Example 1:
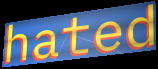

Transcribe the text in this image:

hated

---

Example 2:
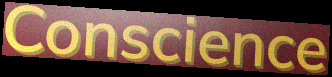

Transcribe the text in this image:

Conscience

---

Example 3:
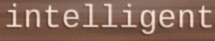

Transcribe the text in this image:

intelligent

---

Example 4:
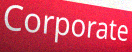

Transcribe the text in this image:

Corporate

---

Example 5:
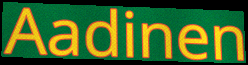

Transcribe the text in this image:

Aadinen